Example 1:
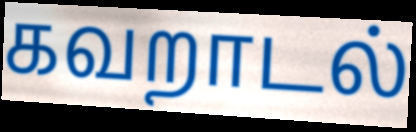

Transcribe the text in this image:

கவறாடல்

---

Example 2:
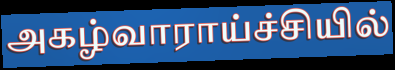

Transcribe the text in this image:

அகழ்வாராய்ச்சியில்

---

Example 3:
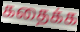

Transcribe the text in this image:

கதைக்க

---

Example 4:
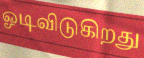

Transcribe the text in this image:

ஓடிவிடுகிறது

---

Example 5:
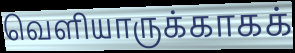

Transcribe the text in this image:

வெளியாருக்காகக்